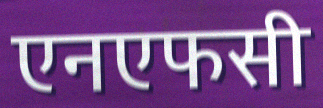
एनएफसी